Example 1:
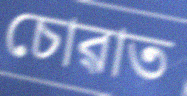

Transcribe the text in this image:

চোৱাত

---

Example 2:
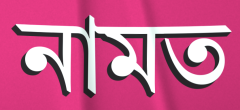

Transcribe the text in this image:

নামত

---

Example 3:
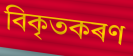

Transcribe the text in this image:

বিকৃতকৰণ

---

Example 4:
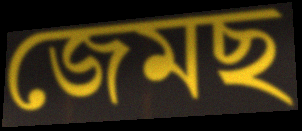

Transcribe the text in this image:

জেমছ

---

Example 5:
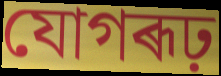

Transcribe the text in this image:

যোগৰূঢ়